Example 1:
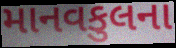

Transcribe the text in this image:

માનવકુલના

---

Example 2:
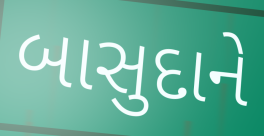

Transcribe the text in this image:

બાસુદાને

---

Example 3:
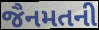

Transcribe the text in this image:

જૈનમતની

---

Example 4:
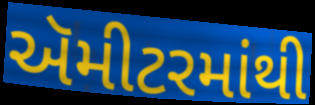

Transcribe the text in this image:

ઍમીટરમાંથી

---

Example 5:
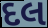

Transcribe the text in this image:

દલ